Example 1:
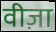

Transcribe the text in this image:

वीज़ा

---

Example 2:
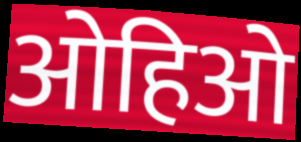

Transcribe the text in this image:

ओहिओ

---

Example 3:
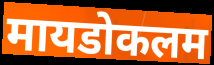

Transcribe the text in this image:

मायडोकलम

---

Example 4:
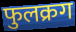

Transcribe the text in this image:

फुलक्रग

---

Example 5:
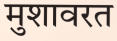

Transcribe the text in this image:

मुशावरत